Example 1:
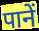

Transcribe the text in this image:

पानें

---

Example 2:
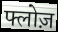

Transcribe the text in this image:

फ्लोज़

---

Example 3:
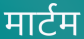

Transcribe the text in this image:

मार्टम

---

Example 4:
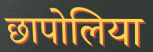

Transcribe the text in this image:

छापोलिया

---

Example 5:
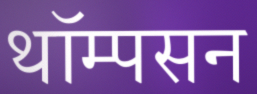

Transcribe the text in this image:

थॉम्पसन